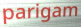
parigam